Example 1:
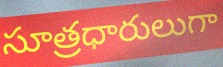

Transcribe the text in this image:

సూత్రధారులుగా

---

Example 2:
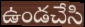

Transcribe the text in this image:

ఉండచేసి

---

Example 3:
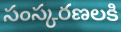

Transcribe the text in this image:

సంస్కరణలకి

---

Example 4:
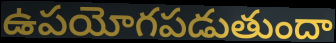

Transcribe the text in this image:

ఉపయోగపడుతుందా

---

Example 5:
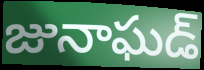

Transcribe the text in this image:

జునాఘడ్